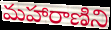
మహారాణిని